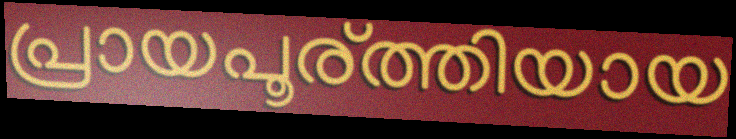
പ്രായപൂര്ത്തിയായ